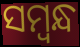
ସମ୍ବନ୍ଧ